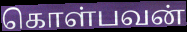
கொள்பவன்